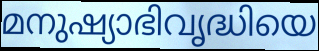
മനുഷ്യാഭിവൃദ്ധിയെ